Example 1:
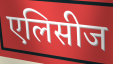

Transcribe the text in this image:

एलिसीज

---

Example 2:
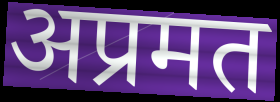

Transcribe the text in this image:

अप्रमत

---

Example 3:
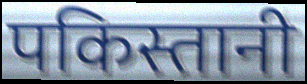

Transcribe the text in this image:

पकिस्तानी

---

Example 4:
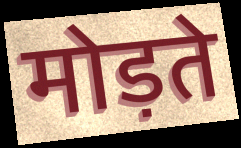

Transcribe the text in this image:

मोड़ते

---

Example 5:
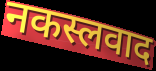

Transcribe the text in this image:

नकस्लवाद